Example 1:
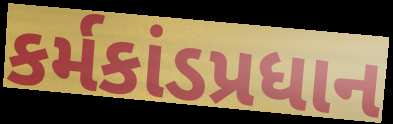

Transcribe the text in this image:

કર્મકાંડપ્રધાન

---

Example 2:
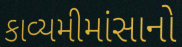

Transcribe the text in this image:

કાવ્યમીમાંસાનો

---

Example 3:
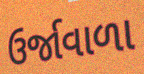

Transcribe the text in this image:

ઉર્જાવાળા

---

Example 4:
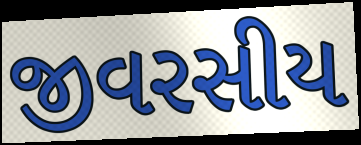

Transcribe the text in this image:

જીવરસીય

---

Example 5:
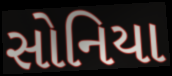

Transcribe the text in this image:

સોનિયા